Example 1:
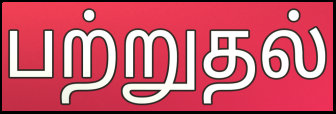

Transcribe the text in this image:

பற்றுதல்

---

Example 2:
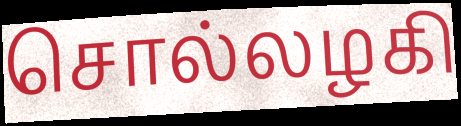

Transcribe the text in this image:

சொல்லழகி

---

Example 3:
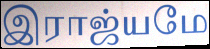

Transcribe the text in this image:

இராஜ்யமே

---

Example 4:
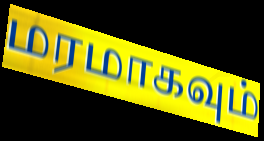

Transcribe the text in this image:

மரமாகவும்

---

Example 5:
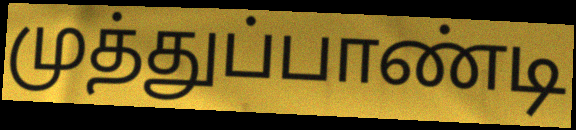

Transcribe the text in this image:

முத்துப்பாண்டி